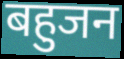
बहुजन